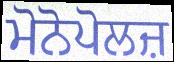
ਮੋਨੋਪੋਲਜ਼